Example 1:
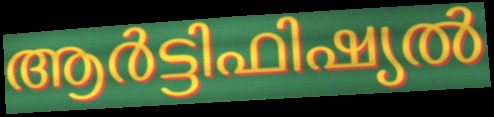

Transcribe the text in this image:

ആർട്ടിഫിഷ്യൽ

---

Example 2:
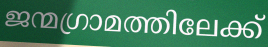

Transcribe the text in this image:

ജന്മഗ്രാമത്തിലേക്ക്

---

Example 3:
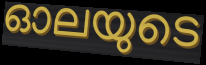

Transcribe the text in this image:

ഓലയുടെ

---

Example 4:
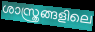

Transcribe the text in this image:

ശാസ്ത്രങ്ങളിലെ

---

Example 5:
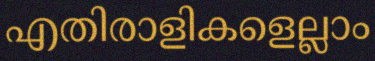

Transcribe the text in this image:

എതിരാളികളെല്ലാം